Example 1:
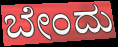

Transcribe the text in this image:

ಬೇಂದು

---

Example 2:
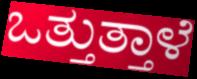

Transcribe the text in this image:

ಒತ್ತುತ್ತಾಳೆ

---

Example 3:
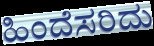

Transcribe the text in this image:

ಹಿಂದೆಸರಿದು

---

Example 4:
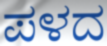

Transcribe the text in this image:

ಪಳದ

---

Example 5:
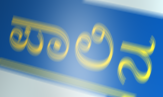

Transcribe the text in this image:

ಪಾಲಿನ